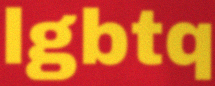
lgbtq